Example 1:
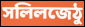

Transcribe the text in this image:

সলিলজেঠু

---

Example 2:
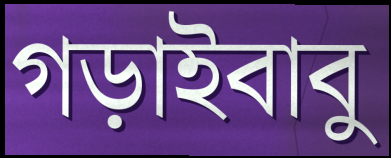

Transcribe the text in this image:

গড়াইবাবু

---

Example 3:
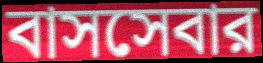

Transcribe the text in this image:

বাসসেবার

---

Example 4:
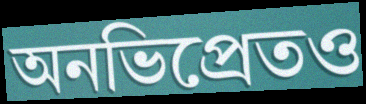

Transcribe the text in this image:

অনভিপ্রেতও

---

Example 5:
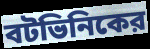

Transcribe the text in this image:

বটভিনিকের